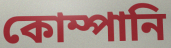
কোম্পানি